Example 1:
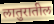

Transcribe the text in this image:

लातुरातील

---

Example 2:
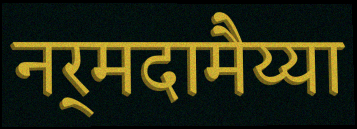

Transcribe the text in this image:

नर्मदामैय्या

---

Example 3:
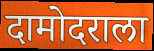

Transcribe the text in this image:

दामोदराला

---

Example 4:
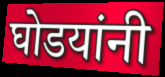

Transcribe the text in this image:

घोडयांनी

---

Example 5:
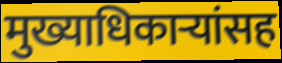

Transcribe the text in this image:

मुख्याधिकाऱ्यांसह